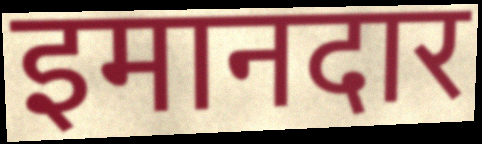
इमानदार